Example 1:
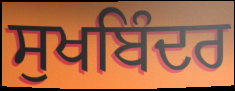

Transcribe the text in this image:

ਸੁਖਬਿੰਦਰ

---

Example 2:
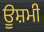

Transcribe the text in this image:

ਊਸ਼ਮੀ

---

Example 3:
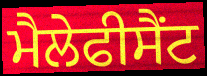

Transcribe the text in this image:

ਮੈਲੇਫੀਸੈਂਟ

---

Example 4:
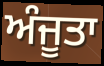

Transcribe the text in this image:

ਅੰਜੂਤਾ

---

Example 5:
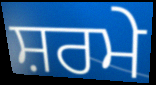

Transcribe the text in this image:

ਸ਼ਰਮੇ